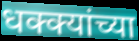
धक्क्यांच्या